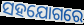
ସହଯୋଗରେ